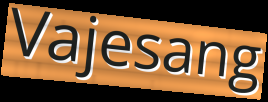
Vajesang